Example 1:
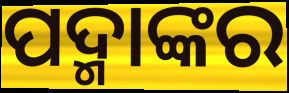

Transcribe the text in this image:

ପଦ୍ମାଙ୍କର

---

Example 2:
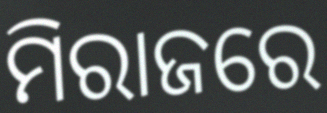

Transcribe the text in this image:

ମିରାଜରେ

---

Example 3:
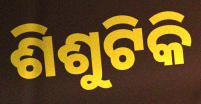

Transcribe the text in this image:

ଶିଶୁଟିକି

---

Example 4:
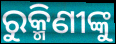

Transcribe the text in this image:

ରୁକ୍ମିଣୀଙ୍କୁ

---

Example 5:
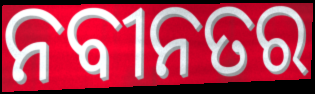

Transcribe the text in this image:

ନବୀନତର